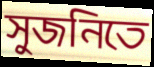
সুজনিতে